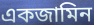
একজামিন